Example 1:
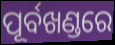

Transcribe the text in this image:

ପୂର୍ବଖଣ୍ଡରେ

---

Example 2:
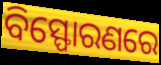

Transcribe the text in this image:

ବିସ୍ଫୋରଣରେ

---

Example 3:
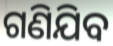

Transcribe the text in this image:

ଗଣିଯିବ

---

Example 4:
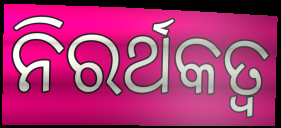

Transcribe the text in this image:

ନିରର୍ଥକତ୍ୱ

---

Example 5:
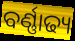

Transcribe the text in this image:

ବର୍ଣ୍ଣାଢ୍ୟ